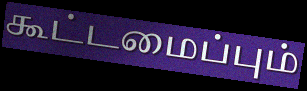
கூட்டமைப்பும்